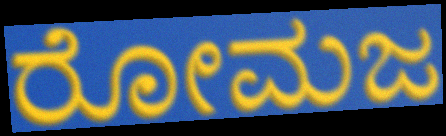
ರೋಮಜ